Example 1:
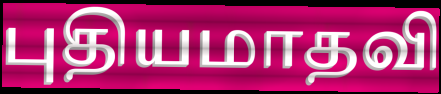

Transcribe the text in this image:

புதியமாதவி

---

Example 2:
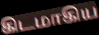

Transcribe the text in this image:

கிடமாகிய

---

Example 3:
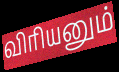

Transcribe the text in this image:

விரியனும்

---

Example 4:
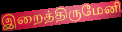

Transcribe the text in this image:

இறைத்திருமேனி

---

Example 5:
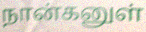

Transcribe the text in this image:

நான்கனுள்